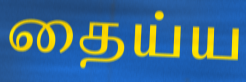
தைய்ய